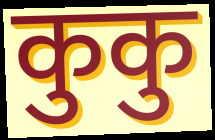
कुकु